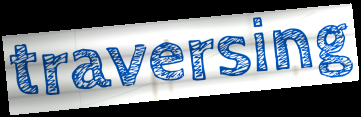
traversing